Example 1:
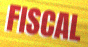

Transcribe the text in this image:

FISCAL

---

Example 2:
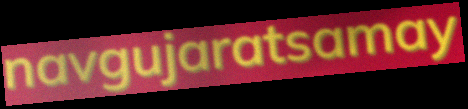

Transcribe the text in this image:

navgujaratsamay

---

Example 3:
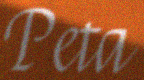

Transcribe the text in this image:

Peta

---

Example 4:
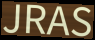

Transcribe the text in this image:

JRAS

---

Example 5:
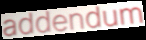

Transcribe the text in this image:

addendum